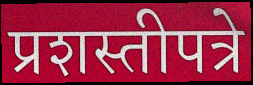
प्रशस्तीपत्रे